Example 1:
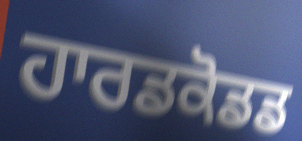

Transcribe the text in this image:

ਹਾਰਡਕੋਡਡ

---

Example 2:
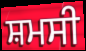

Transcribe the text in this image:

ਸ਼ਮਸੀ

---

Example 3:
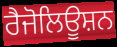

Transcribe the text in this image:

ਰੈਜੋਲਿਊਸ਼ਨ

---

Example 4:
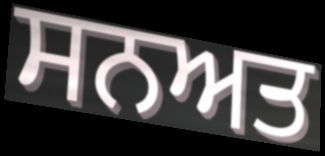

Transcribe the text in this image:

ਸਨਅਤ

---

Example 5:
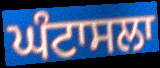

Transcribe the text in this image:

ਘੰਟਾਸਲਾ